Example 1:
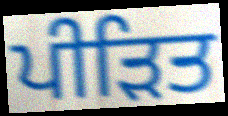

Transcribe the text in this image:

ਪੀੜਿਤ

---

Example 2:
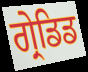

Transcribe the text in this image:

ਗ੍ਰੇਡਿਡ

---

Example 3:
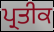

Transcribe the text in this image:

ਪ੍ਰਤੀਕ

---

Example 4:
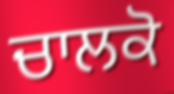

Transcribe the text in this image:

ਚਾਲਕੋ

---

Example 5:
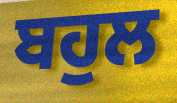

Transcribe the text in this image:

ਬਹੁਲ